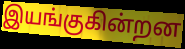
இயங்குகின்றன